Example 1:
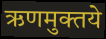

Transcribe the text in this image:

ऋणमुक्तये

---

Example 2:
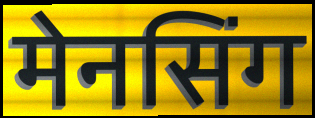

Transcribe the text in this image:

मेनसिंग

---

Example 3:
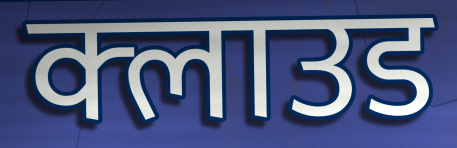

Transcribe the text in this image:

क्‍लाउड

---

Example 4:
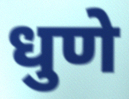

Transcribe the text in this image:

धुणे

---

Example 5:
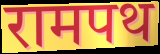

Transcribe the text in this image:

रामपथ